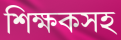
শিক্ষকসহ